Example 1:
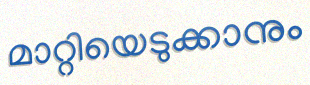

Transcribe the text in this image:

മാറ്റിയെടുക്കാനും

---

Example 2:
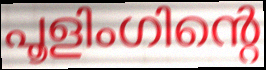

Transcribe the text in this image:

പൂളിംഗിന്റെ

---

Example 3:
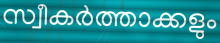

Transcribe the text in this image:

സ്വീകർത്താക്കളും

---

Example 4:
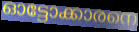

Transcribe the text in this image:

ഓട്ടോക്കാരനെ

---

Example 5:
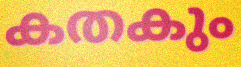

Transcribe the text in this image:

കതകും